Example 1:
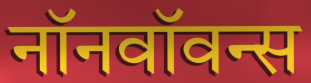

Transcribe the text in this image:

नॉनवॉवन्स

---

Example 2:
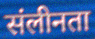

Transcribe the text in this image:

संलीनता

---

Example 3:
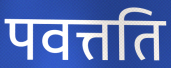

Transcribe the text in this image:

पवत्तति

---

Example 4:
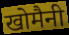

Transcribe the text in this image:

खोमैनी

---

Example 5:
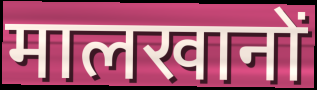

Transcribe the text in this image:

मालखानों